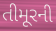
તીમૂરની